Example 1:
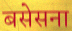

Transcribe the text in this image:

बसेसना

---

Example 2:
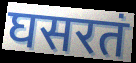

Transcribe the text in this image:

घसरतं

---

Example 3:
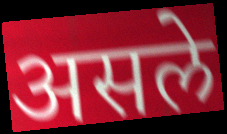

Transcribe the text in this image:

असले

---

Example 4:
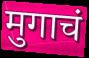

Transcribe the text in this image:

मुगाचं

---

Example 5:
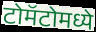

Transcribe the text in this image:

टोमॅटोमध्ये